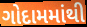
ગોદામમાંથી